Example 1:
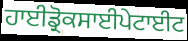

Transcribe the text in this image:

ਹਾਈਡ੍ਰੋਕਸਾਈਪੇਟਾਈਟ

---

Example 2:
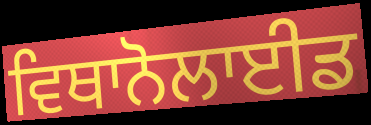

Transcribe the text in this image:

ਵਿਥਾਨੋਲਾਈਡ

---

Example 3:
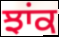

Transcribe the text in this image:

ਝਾਂਕ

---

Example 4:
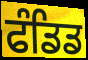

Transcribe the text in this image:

ਫੰਡਿਡ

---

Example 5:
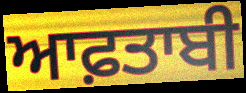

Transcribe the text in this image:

ਆਫ਼ਤਾਬੀ